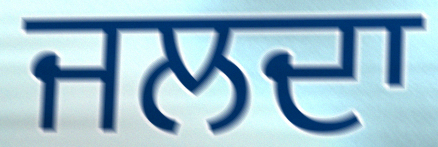
ਜਲਦਾ